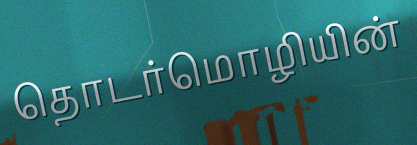
தொடர்மொழியின்